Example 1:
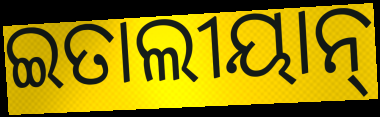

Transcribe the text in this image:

ଇତାଲୀୟାନ୍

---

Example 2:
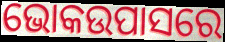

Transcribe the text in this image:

ଭୋକଉପାସରେ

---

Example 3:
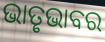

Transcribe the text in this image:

ଭାତୃଭାବର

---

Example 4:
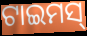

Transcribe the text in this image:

ଟାଇମସ୍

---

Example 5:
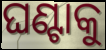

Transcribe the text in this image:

ଘଣ୍ଟାକୁ